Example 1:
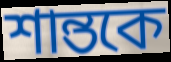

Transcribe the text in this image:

শান্তকে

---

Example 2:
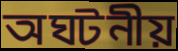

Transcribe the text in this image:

অঘটনীয়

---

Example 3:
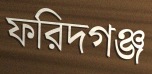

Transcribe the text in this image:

ফরিদগঞ্জ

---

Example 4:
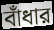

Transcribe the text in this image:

বাঁধার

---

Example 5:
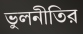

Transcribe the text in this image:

ভুলনীতির